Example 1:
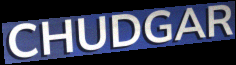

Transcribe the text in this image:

CHUDGAR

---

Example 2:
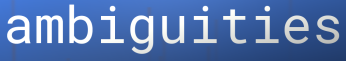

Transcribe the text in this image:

ambiguities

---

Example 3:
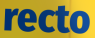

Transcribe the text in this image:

recto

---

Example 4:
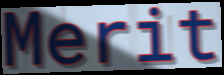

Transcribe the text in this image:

Merit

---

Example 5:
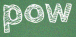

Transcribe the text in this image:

pow